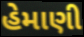
હેમાણી